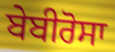
ਬੇਬੀਰੋਸਾ